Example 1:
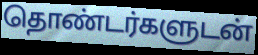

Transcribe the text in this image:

தொண்டர்களுடன்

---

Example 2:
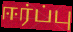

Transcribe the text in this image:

ஈர்ப்பு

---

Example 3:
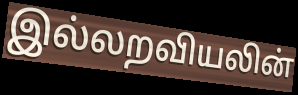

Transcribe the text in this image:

இல்லறவியலின்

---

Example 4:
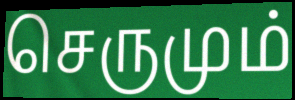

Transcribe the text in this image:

செருமும்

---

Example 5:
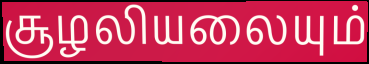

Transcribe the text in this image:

சூழலியலையும்